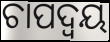
ଚାପଦ୍ଵୟ